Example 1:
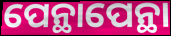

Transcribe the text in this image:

ପେନ୍ଥାପେନ୍ଥା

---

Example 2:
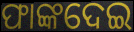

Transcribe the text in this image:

ଫାଙ୍କଦେଇ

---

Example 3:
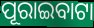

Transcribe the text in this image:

ପୂରାଇବାଟା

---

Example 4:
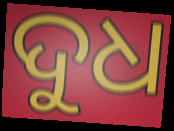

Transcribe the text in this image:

ଦୁଧ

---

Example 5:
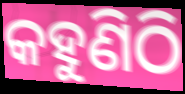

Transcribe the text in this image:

କହୁଣିଠି